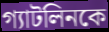
গ্যাটলিনকে